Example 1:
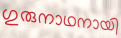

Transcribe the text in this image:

ഗുരുനാഥനായി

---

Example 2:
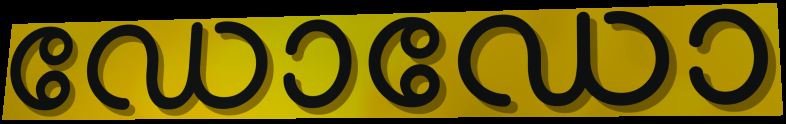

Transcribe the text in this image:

ഡോഡോ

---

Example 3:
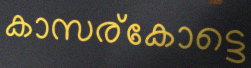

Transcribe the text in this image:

കാസര്കോട്ടെ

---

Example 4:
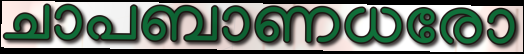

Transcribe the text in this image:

ചാപബാണധരോ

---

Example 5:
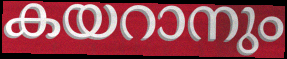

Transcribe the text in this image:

കയറാനും